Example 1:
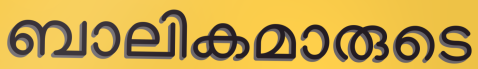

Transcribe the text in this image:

ബാലികമാരുടെ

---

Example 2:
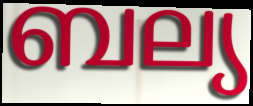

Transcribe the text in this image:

ബല്യ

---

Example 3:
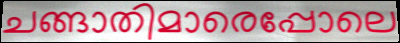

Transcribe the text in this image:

ചങ്ങാതിമാരെപ്പോലെ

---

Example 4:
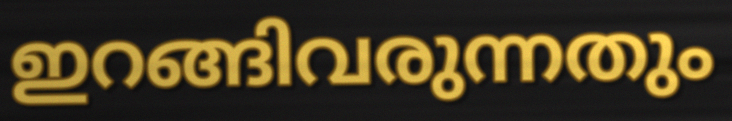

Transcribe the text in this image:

ഇറങ്ങിവരുന്നതും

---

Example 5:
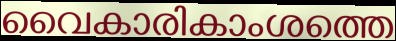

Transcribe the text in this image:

വൈകാരികാംശത്തെ